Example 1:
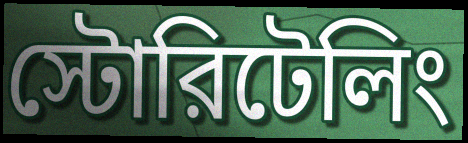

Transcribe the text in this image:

স্টোরিটেলিং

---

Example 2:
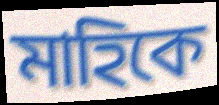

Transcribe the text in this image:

মাহিকে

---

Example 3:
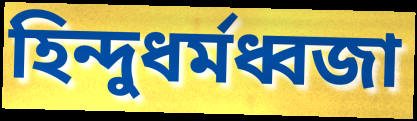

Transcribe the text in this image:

হিন্দুধর্মধ্বজা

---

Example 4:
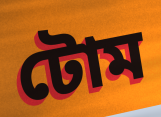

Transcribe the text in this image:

টোম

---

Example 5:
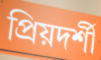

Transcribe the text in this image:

প্রিয়দর্শী